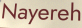
Nayereh